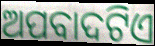
ଅପବାଦଟିଏ